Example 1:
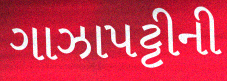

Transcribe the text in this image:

ગાઝાપટ્ટીની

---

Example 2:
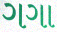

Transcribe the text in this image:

ગગા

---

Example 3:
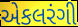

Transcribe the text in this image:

એકલરંગી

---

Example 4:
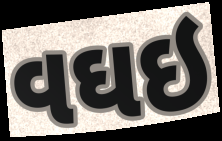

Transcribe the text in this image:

વઘઇ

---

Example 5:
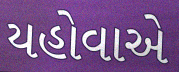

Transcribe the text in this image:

યહોવાએ